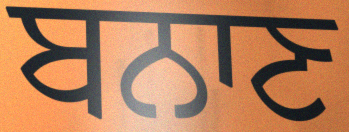
ਬਨਾਣ